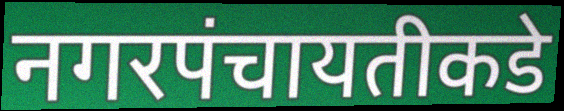
नगरपंचायतीकडे